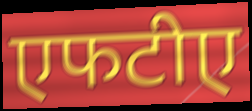
एफटीए